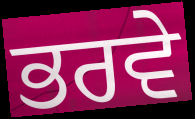
ਭਰਵੇ